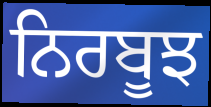
ਨਿਰਬੂਝ